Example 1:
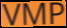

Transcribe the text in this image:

VMP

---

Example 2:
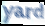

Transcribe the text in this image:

yard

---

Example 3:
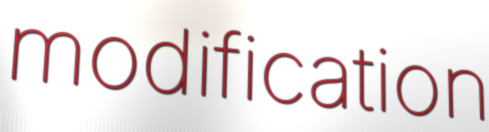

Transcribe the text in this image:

modification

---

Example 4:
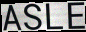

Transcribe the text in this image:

ASLE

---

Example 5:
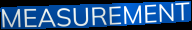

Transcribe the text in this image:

MEASUREMENT